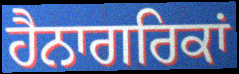
ਹੈਨਾਗਰਿਕਾਂ